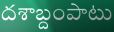
దశాబ్దంపాటు